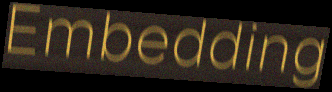
Embedding